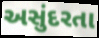
અસુંદરતા